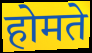
होमते